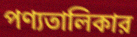
পণ্যতালিকার